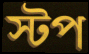
স্টপ